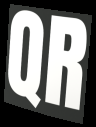
QR